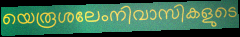
യെരൂശലേംനിവാസികളുടെ